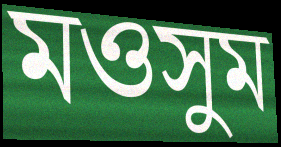
মওসুম